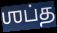
ஶப்த